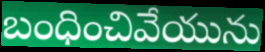
బంధించివేయును